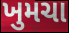
ખુમચા